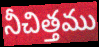
నీచిత్తము